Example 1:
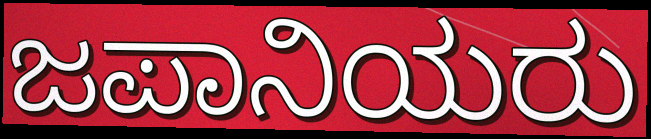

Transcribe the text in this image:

ಜಪಾನಿಯರು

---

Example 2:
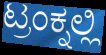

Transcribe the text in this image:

ಟ್ರಂಕ್ನಲ್ಲಿ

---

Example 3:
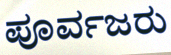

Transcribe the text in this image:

ಪೂರ್ವಜರು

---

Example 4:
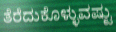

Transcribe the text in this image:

ತೆರೆದುಕೊಳ್ಳುವಷ್ಟು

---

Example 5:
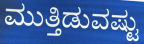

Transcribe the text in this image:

ಮುತ್ತಿಡುವಷ್ಟು